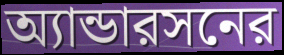
অ্যান্ডারসনের